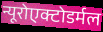
न्यूरोएक्टोडर्मल